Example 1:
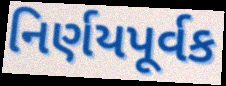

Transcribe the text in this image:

નિર્ણયપૂર્વક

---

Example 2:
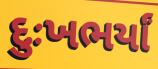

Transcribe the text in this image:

દુઃખભર્યાં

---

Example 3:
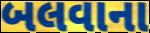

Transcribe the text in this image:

બલવાના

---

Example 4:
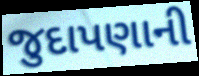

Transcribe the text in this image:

જુદાપણાની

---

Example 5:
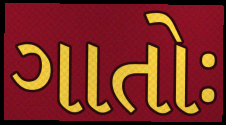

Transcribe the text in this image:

ગાતોઃ